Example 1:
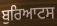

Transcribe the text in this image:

ਬੁਰਿਆਟਸ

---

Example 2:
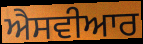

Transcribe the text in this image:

ਐਸਵੀਆਰ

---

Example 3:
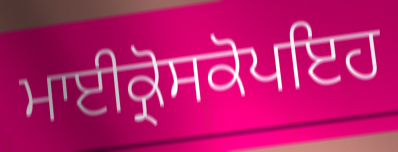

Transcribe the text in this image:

ਮਾਈਕ੍ਰੋਸਕੋਪਇਹ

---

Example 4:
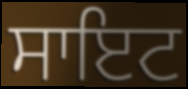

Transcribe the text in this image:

ਸਾਇਟ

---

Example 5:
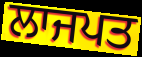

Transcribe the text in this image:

ਲਾਜਪਤ